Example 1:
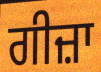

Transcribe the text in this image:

ਗੀਜ਼ਾ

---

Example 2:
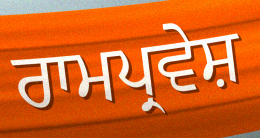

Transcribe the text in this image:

ਰਾਮਪ੍ਰਵੇਸ਼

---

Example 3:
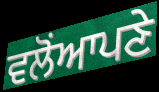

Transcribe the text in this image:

ਵਲੋਂਆਪਣੇ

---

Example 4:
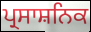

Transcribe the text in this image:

ਪ੍ਰਸਾਸ਼ਨਿਕ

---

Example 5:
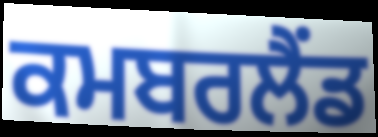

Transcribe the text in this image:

ਕਮਬਰਲੈਂਡ